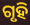
ଗୃହି